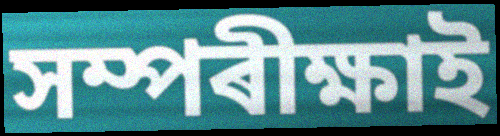
সম্পৰীক্ষাই